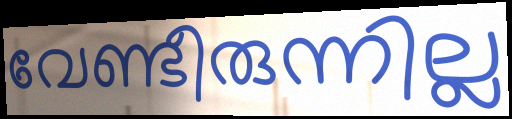
വേണ്ടീരുന്നില്ല